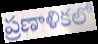
ప్రణాళికలో